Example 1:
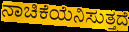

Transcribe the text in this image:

ನಾಚಿಕೆಯೆನಿಸುತ್ತದೆ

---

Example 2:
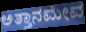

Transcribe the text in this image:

ಅತ್ತಾನಮೇವ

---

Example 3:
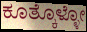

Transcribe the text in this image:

ಕೂತ್ಕೊಳ್ಳೋ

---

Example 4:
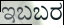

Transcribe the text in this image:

ಇಬಬರ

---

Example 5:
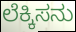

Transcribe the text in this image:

ಲೆಕ್ಕಿಸನು